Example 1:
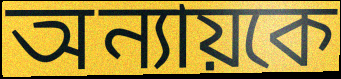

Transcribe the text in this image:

অন্যায়কে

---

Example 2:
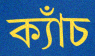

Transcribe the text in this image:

ক্যাঁচ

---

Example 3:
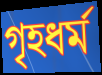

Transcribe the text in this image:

গৃহধর্ম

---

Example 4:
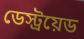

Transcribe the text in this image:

ডেস্ট্রয়েড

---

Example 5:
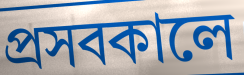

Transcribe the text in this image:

প্রসবকালে